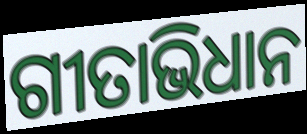
ଗୀତାଭିଧାନ